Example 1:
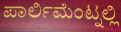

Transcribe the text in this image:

ಪಾರ್ಲಿಮೆಂಟ್ನಲ್ಲಿ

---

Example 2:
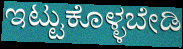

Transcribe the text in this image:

ಇಟ್ಟುಕೊಳ್ಳಬೇಡಿ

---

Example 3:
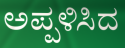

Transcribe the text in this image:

ಅಪ್ಪಳಿಸಿದ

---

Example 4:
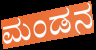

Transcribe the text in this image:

ಮಂಡನ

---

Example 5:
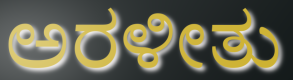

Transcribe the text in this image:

ಅರಳೀತು